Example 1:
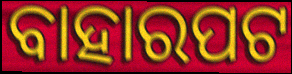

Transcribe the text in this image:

ବାହାରପଟ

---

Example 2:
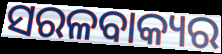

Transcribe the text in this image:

ସରଳବାକ୍ୟର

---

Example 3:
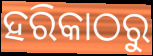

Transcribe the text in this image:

ହରିକାଠରୁ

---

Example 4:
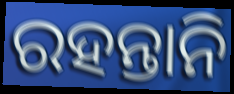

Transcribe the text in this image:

ରହନ୍ତାନି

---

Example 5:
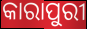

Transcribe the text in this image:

କାରାପୁରୀ